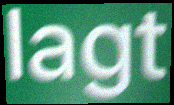
lagt